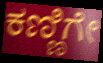
ಕಣ್ಣಿಗೇ